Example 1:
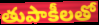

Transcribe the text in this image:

తుపాకీలతో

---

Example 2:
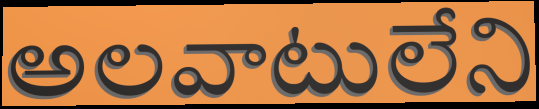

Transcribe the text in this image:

అలవాటులేని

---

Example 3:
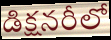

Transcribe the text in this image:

డిక్షనరీలో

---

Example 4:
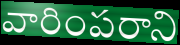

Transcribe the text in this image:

వారింపరాని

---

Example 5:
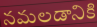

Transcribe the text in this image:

నమలడానికి